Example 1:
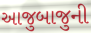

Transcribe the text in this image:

આજુબાજુની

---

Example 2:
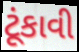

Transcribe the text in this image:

ટૂંકાવી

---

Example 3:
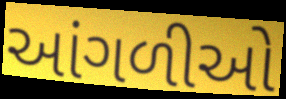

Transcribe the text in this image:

આંગળીઓ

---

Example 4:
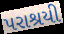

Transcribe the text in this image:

પરાશ્રયી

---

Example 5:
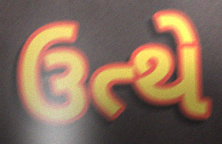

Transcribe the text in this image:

ઉત્થે